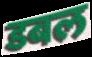
डबल